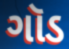
ગૉડ